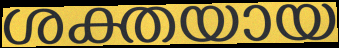
ശക്തയായ